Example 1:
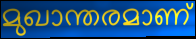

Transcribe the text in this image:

മുഖാന്തരമാണ്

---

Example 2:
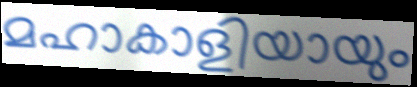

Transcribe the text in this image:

മഹാകാളിയായും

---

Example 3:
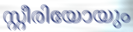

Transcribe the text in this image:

സ്റ്റീരിയോയും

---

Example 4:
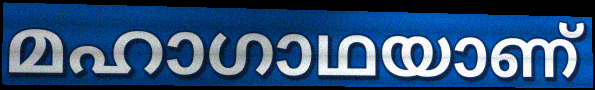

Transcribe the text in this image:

മഹാഗാഥയാണ്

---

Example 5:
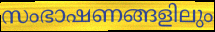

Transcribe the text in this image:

സംഭാഷണങ്ങളിലും